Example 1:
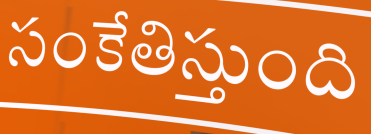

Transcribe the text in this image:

సంకేతిస్తుంది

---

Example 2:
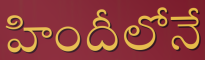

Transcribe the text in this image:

హిందీలోనే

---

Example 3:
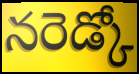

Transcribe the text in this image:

నరెడ్కో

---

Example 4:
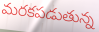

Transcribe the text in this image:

మరకపడుతున్న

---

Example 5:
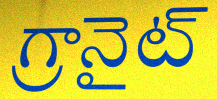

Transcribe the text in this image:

గ్రానైట్